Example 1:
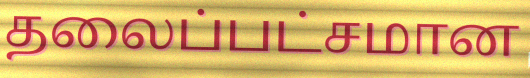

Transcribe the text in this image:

தலைப்பட்சமான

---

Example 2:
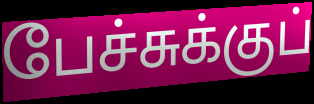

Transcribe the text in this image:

பேச்சுக்குப்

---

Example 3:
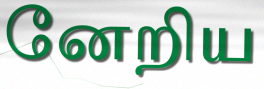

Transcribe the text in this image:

னேறிய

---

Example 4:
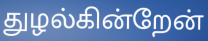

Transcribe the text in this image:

துழல்கின்றேன்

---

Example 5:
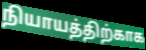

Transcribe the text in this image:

நியாயத்திற்காக